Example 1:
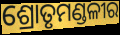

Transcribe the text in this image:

ଶ୍ରୋତୃମଣ୍ଡଳୀର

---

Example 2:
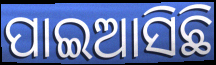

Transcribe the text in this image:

ପାଇଆସିଛି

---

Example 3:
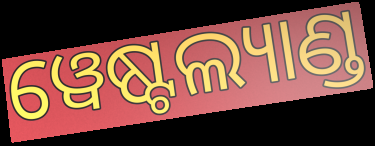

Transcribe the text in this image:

ୱେଷ୍ଟଲ୍ୟାଣ୍ଡ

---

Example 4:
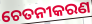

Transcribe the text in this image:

ଚେତନୀକରଣ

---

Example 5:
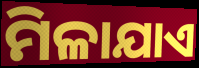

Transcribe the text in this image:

ମିଳାଯାଏ